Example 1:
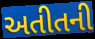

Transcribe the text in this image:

અતીતની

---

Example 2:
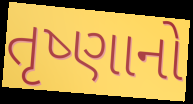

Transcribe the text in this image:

તૃષ્ણાનો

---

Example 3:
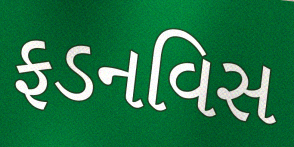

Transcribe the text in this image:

ફડનવિસ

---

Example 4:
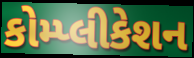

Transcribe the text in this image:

કોમ્પ્લીકેશન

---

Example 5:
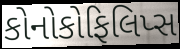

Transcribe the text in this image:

કોનોકોફિલિપ્સ